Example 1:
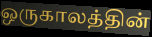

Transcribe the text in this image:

ஒருகாலத்தின்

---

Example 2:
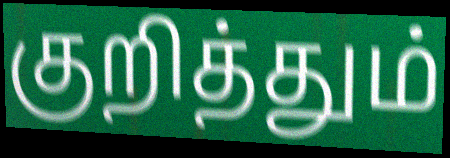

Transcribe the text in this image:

குறித்தும்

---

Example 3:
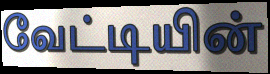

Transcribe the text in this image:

வேட்டியின்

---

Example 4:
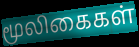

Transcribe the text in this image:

மூலிகைகள்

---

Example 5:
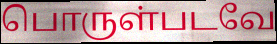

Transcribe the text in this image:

பொருள்படவே